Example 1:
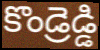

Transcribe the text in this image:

కొండ్రెడ్డి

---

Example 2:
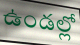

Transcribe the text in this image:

ఉండల్లో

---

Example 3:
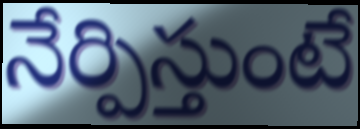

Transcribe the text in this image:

నేర్పిస్తుంటే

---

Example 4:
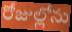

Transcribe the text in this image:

రోజుల్లోను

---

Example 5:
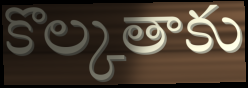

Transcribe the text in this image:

కొల్కతాకు